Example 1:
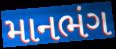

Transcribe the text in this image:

માનભંગ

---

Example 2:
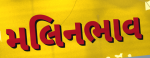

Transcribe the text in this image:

મલિનભાવ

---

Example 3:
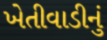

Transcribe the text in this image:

ખેતીવાડીનું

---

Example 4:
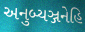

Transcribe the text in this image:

અનુબ્યઞ્જનેહિ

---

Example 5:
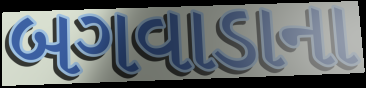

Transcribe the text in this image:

બગવાડાના